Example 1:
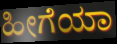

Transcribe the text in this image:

ಹೀಗೆಯಾ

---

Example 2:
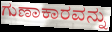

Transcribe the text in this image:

ಗುಣಾಕಾರವನ್ನು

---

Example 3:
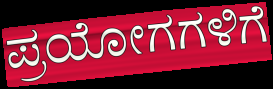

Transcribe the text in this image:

ಪ್ರಯೋಗಗಳಿಗೆ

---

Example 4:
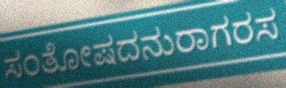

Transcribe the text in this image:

ಸಂತೋಷದನುರಾಗರಸ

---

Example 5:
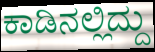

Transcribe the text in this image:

ಕಾಡಿನಲ್ಲಿದ್ದು